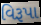
વિરૂપા